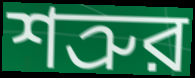
শত্রুর